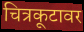
चित्रकूटावर